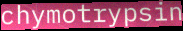
chymotrypsin